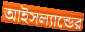
আইসল্যান্ডের